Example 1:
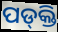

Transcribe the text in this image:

ପଡ୍‌କ୍ତି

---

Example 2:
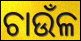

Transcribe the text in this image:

ଚାଉଁଳ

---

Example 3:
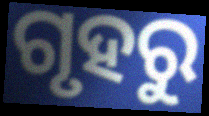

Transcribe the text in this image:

ଗୃହରୁ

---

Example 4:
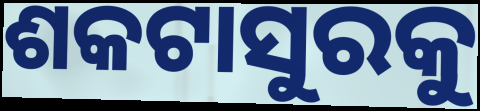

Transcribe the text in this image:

ଶକଟାସୁରକୁ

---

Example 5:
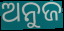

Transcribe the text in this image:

ଅନୁଜ